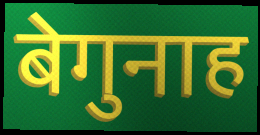
बेगुनाह